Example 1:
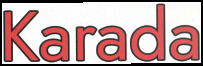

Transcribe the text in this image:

Karada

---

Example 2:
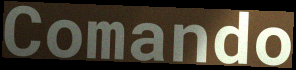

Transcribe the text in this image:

Comando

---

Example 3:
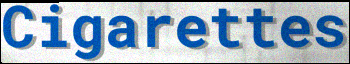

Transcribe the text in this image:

Cigarettes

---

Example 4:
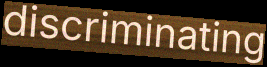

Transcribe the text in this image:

discriminating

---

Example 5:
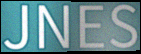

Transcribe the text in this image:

JNES